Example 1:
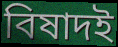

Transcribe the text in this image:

বিষাদই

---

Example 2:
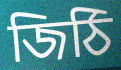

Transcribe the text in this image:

জিঠি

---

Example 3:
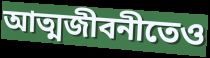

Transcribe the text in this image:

আত্মজীবনীতেও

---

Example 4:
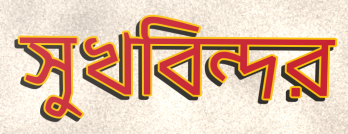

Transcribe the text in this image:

সুখবিন্দর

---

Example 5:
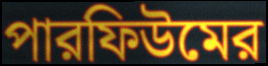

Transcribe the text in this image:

পারফিউমের